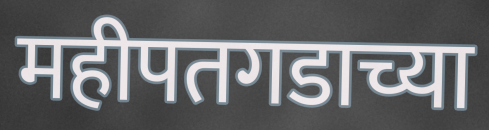
महीपतगडाच्या